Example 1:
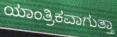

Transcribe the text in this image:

ಯಾಂತ್ರಿಕವಾಗುತ್ತಾ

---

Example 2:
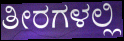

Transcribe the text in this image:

ತೀರಗಳಲ್ಲಿ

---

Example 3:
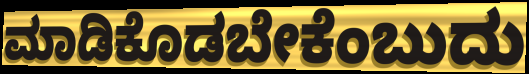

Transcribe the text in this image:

ಮಾಡಿಕೊಡಬೇಕೆಂಬುದು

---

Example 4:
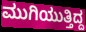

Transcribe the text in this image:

ಮುಗಿಯುತ್ತಿದ್ದ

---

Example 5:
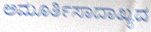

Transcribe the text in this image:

ಅಮೂರ್ತಿಸಾದಾಖ್ಯದ